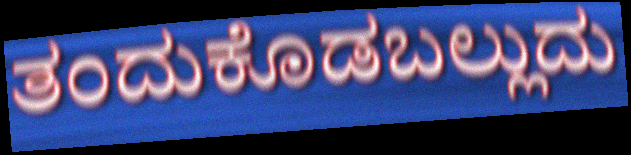
ತಂದುಕೊಡಬಲ್ಲುದು